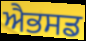
ਐਭਸਡ